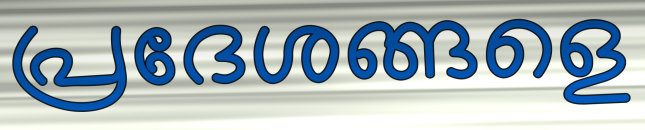
പ്രദേശങ്ങളെ